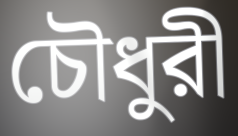
চৌধুরী